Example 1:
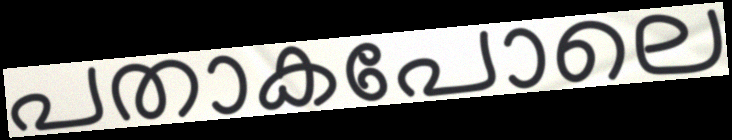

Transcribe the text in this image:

പതാകപോലെ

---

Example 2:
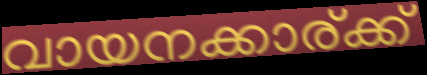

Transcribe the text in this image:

വായനക്കാര്ക്ക്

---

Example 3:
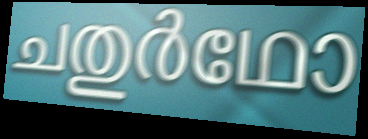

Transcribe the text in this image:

ചതുർഥോ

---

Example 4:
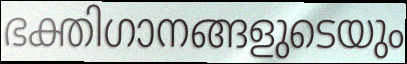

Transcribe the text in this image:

ഭക്തിഗാനങ്ങളുടെയും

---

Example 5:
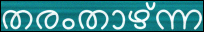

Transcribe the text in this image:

തരംതാഴ്ന്ന